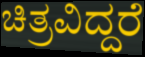
ಚಿತ್ರವಿದ್ದರೆ